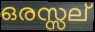
ഒരസ്സല്